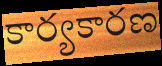
కార్యకారణ